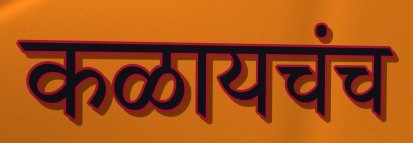
कळायचंच